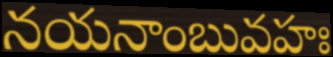
నయనాంబువహః